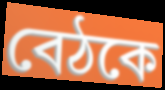
বেঠকে